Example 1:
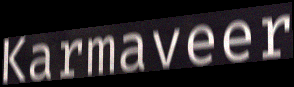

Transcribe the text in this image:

Karmaveer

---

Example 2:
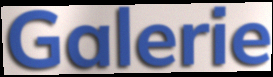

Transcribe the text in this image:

Galerie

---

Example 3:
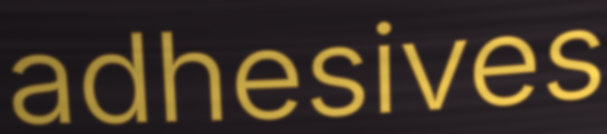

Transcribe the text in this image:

adhesives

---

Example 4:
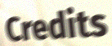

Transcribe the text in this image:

Credits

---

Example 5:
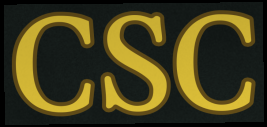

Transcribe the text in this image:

CSC